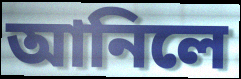
আনিলে